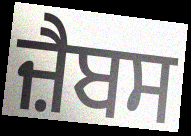
ਜ਼ੈਬਸ